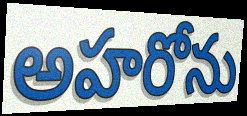
అహరోను